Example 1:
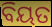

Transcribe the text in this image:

ବିୟତ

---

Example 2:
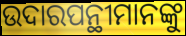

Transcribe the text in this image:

ଉଦାରପନ୍ଥୀମାନଙ୍କୁ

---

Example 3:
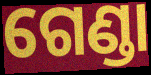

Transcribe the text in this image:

ଗେଣ୍ଡା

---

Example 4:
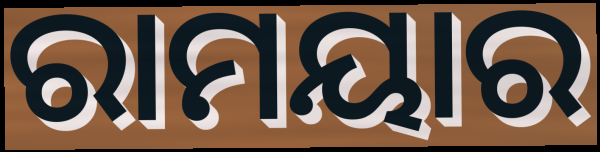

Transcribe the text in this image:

ରାମୟାର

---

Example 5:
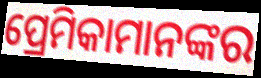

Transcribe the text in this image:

ପ୍ରେମିକାମାନଙ୍କର